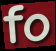
fo